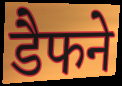
डैफने